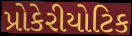
પ્રોકેરીયોટિક